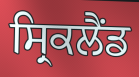
ਸ੍ਰਿਕਲੈਂਡ